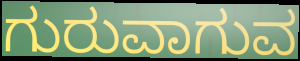
ಗುರುವಾಗುವ